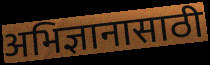
अभिज्ञानासाठी